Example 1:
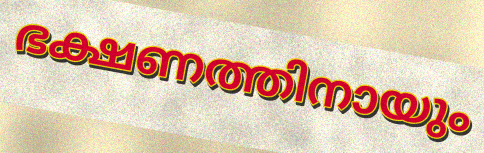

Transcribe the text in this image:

ഭക്ഷണത്തിനായും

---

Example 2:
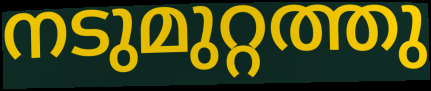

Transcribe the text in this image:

നടുമുറ്റത്തു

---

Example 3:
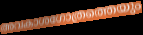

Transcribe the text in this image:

അവകാശഗോത്രത്തെയും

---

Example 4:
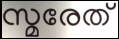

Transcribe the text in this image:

സ്മരേത്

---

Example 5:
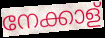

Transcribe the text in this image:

നേക്കാള്